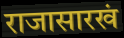
राजासारखं